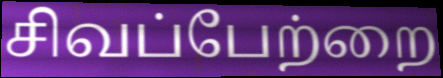
சிவப்பேற்றை